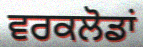
ਵਰਕਲੋਡਾਂ